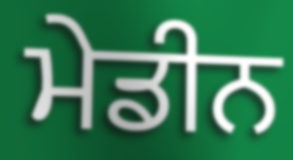
ਮੇਡੀਨ